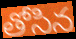
తోసిన